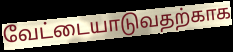
வேட்டையாடுவதற்காக